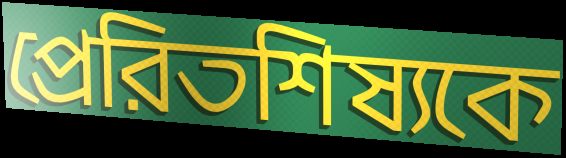
প্রেরিতশিষ্যকে